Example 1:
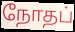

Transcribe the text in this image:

நோதப்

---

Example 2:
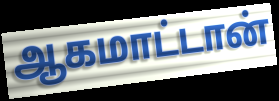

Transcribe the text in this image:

ஆகமாட்டான்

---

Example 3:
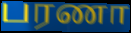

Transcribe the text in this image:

பரணா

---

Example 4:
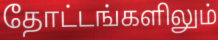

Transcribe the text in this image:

தோட்டங்களிலும்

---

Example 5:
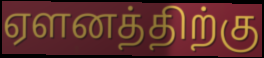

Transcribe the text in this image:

ஏளனத்திற்கு